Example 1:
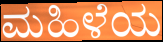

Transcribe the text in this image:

ಮಹಿಳೆಯ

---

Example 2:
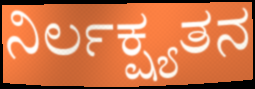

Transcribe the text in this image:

ನಿರ್ಲಕ್ಷ್ಯತನ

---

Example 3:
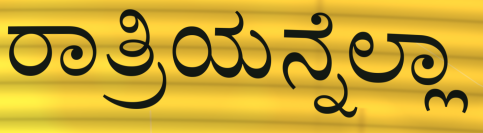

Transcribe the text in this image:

ರಾತ್ರಿಯನ್ನೆಲ್ಲಾ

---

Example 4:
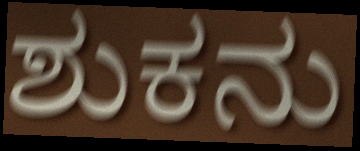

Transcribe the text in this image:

ಶುಕನು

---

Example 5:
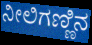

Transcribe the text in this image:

ನೀಲಿಗಣ್ಣಿನ